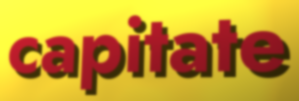
capitate